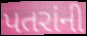
પતરાંની